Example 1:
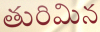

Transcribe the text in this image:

తురిమిన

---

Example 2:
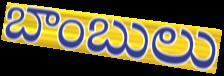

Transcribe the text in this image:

బాంబులు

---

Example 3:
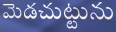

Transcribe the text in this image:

మెడచుట్టును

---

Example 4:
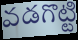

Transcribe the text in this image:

వడగొట్టి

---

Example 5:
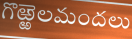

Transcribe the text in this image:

గొఱ్ఱెలమందలు